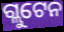
ଗ୍ଲୁଟେନ